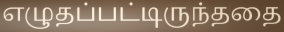
எழுதப்பட்டிருந்ததை